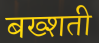
बख्शती